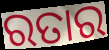
ରତାର